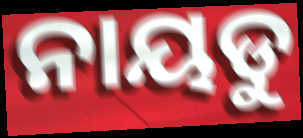
ନାୟଡୁ